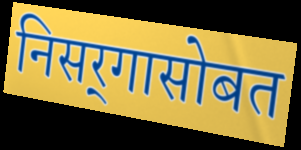
निसर्गासोबत